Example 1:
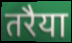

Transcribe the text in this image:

तरैया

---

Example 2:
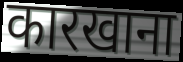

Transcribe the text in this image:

कारखाना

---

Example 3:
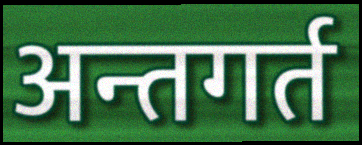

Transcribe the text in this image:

अन्तगर्त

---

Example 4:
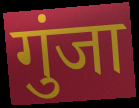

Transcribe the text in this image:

गुंजा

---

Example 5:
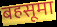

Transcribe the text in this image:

बहसूमा